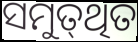
ସମୁତ୍‌ଥିତ